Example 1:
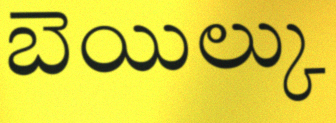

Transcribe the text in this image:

బెయిల్కు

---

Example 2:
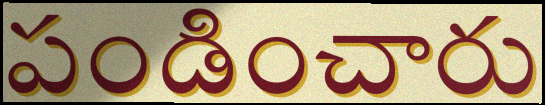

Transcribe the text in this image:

పండించారు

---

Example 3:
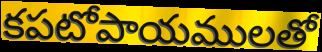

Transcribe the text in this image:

కపటోపాయములతో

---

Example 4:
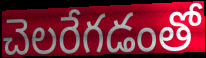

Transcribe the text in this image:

చెలరేగడంతో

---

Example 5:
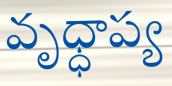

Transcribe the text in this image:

వృధ్ధాప్య